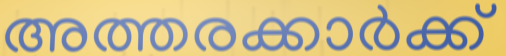
അത്തരക്കാർക്ക്